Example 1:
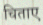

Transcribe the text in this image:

चिताए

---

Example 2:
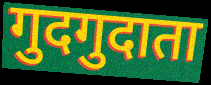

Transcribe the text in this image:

गुदगुदाता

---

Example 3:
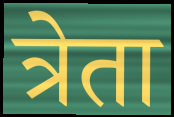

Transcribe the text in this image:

त्रेता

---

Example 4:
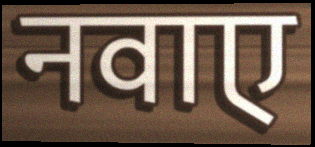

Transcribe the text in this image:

नवाए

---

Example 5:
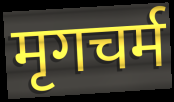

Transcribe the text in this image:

मृगचर्म